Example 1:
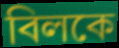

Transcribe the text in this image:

বিলকে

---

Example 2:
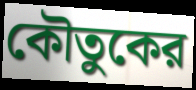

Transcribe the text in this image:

কৌতুকের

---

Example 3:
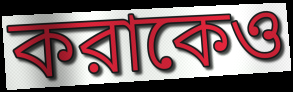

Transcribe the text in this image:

করাকেও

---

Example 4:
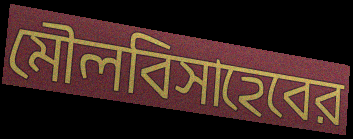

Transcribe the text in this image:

মৌলবিসাহেবের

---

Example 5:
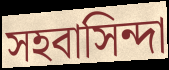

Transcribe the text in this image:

সহবাসিন্দা